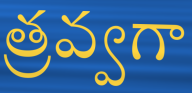
త్రవ్వగా